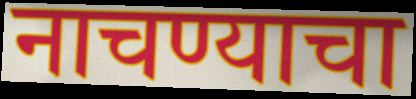
नाचण्याचा